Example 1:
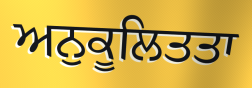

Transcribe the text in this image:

ਅਨੁਕੂਲਿਤਤਾ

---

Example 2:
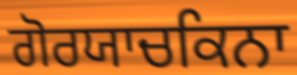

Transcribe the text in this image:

ਗੋਰਯਾਚਕਿਨਾ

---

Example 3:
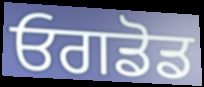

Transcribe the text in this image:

ਓਗਡੋਡ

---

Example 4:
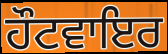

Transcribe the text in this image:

ਹੌਟਵਾਇਰ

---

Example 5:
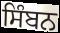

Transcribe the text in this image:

ਸਿੰਬਨ